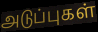
அடுப்புகள்